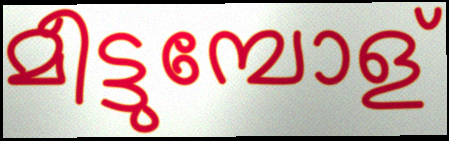
മീട്ടുമ്പോള്